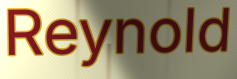
Reynold